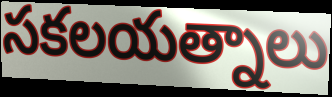
సకలయత్నాలు